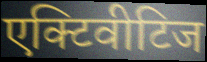
एक्टिवीटिज